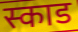
स्काड